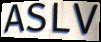
ASLV